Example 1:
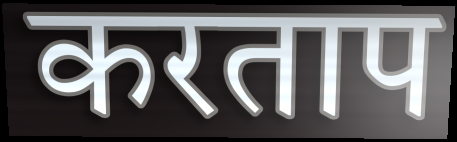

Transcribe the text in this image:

करताप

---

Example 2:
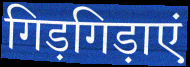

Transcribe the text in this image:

गिड़गिड़ाएं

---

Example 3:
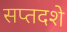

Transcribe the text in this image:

सप्तदशे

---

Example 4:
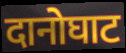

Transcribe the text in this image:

दानोघाट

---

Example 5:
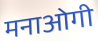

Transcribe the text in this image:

मनाओगी